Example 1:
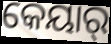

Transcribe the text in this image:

କେୟାର୍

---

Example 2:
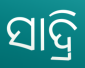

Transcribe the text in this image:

ସାଦ୍ରି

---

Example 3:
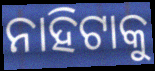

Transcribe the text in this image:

ନାହିଟାକୁ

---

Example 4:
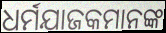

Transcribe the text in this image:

ଧର୍ମଯାଜକମାନଙ୍କ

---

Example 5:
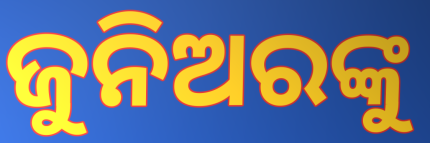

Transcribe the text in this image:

ଜୁନିଅରଙ୍କୁ